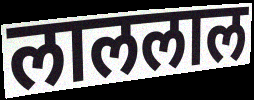
लाललाल